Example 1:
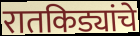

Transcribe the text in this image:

रातकिड्यांचे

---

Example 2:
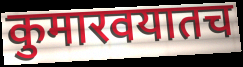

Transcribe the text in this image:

कुमारवयातच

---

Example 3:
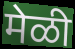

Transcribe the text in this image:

मेळी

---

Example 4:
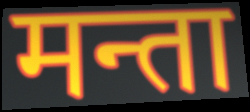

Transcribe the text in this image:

मन्ता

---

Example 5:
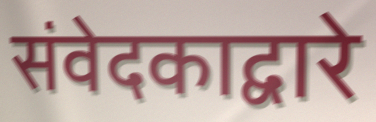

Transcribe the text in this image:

संवेदकाद्वारे